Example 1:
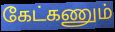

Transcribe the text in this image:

கேட்கணும்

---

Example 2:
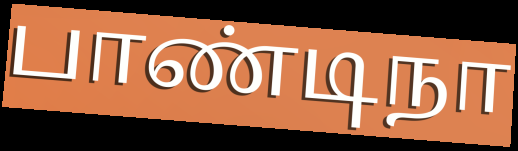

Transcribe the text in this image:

பாண்டிநா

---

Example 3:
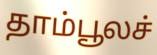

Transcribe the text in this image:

தாம்பூலச்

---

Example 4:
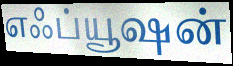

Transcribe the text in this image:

எஃப்யூஷன்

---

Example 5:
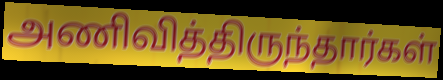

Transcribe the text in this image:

அணிவித்திருந்தார்கள்